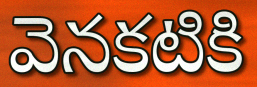
వెనకటికి